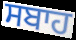
ਸਬਾਹ